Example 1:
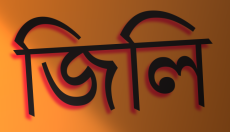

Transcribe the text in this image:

জিলি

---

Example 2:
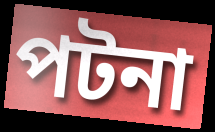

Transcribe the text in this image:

পটনা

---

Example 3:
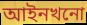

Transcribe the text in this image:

আইনখনো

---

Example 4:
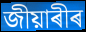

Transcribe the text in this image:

জীয়াৰীৰ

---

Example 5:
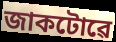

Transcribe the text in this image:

জাকটোৱে